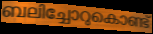
ബലിച്ചോറുകൊണ്ട്